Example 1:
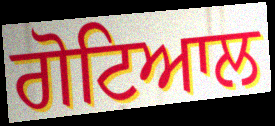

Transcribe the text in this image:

ਗੋਟਿਆਲ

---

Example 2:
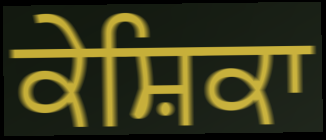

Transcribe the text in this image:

ਕੇਸ਼ਿਕਾ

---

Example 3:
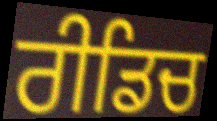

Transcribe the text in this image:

ਰੀਡਿਚ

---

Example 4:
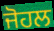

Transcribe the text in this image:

ਜੋਹਲ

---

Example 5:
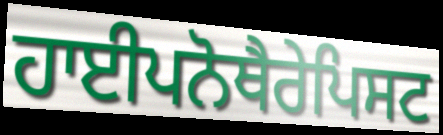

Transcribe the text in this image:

ਹਾਈਪਨੋਥੈਰੇਪਿਸਟ